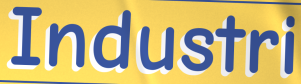
Industri